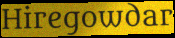
Hiregowdar